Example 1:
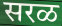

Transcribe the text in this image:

सरळ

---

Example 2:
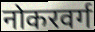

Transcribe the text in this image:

नोकरवर्ग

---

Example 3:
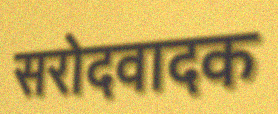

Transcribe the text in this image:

सरोदवादक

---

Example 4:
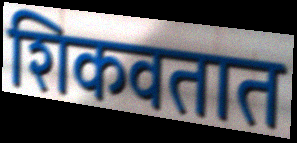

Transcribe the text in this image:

शिकवतात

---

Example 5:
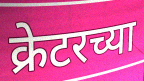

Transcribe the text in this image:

क्रेटरच्या